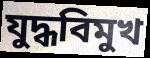
যুদ্ধবিমুখ